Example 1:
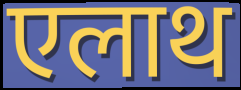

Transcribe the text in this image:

एलाथ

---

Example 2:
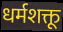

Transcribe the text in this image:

धर्मशक्तू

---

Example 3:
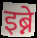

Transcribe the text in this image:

इब्ने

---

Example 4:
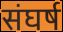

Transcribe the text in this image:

संघर्ष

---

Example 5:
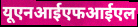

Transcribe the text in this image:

यूएनआईएफआईएल